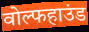
वोल्फहाउंड